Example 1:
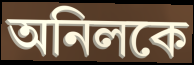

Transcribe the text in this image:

অনিলকে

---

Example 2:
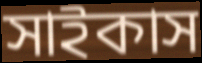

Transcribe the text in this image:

সাইকাস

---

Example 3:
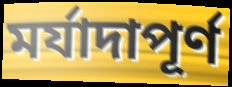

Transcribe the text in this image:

মর্যাদাপূর্ণ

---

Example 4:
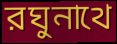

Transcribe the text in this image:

রঘুনাথে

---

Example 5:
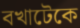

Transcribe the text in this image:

বখাটেকে